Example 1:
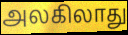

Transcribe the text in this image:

அலகிலாது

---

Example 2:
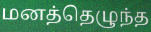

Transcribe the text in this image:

மனத்தெழுந்த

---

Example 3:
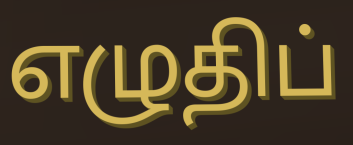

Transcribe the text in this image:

எழுதிப்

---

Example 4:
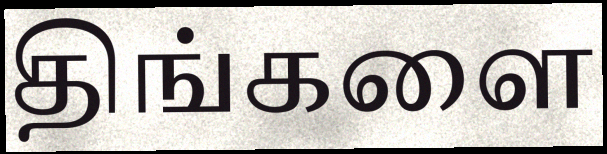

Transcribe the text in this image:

திங்களை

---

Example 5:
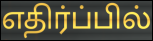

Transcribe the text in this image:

எதிர்ப்பில்